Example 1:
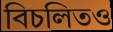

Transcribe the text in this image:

বিচলিতও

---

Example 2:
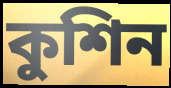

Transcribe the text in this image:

কুশিন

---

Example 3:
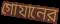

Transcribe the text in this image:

গোযানের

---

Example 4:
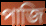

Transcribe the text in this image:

পাজি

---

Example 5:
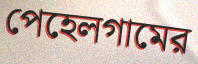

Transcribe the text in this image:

পেহেলগামের